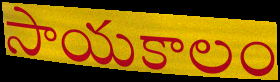
సాయకాలం